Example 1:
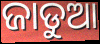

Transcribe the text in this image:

ଜାଡୁଆ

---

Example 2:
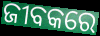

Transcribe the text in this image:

ଜୀବକରେ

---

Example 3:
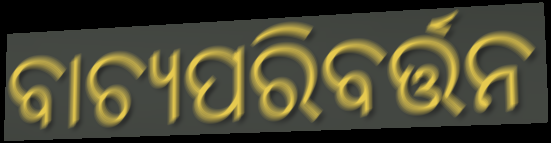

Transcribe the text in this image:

ବାଚ୍ୟପରିବର୍ତ୍ତନ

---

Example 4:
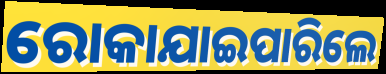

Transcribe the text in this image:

ରୋକାଯାଇପାରିଲେ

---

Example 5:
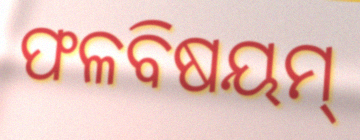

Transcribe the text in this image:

ଫଳବିଷୟମ୍